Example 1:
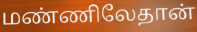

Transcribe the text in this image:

மண்ணிலேதான்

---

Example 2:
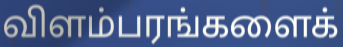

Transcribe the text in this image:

விளம்பரங்களைக்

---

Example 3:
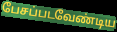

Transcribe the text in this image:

பேசப்படவேண்டிய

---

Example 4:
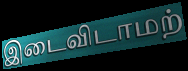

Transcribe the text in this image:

இடைவிடாமற்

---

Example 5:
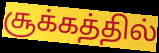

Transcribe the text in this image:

சூக்கத்தில்